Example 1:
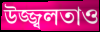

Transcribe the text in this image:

উজ্জ্বলতাও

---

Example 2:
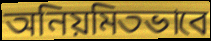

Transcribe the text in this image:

অনিয়মিতভাবে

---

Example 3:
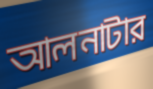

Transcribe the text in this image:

আলনাটার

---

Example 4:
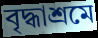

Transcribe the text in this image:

বৃদ্ধাশ্রমে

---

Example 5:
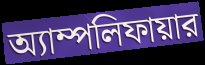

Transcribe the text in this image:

অ্যাম্পলিফায়ার